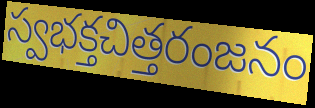
స్వభక్తచిత్తరంజనం